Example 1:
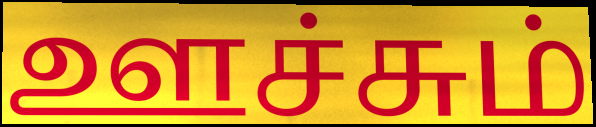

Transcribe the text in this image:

ஊச்சும்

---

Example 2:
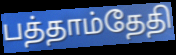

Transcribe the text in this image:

பத்தாம்தேதி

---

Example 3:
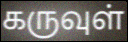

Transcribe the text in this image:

கருவுள்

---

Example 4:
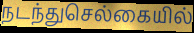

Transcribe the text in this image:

நடந்துசெல்கையில்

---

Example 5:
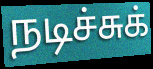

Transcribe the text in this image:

நடிச்சுக்